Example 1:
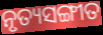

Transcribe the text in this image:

ନୃତ୍ୟସଙ୍ଗୀତ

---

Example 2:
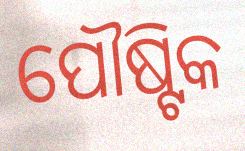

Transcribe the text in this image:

ପୌଷ୍ଟିକ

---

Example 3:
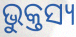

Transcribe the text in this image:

ଭୁକ୍ତସ୍ୟ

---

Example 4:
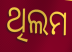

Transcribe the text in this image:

ଥିଲମ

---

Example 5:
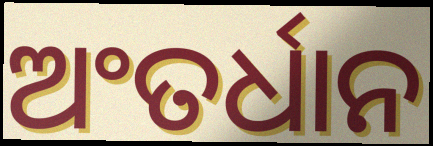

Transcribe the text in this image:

ଅଂତର୍ଧାନ